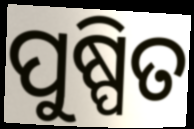
ପୁଷ୍ପିତ